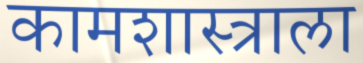
कामशास्त्राला